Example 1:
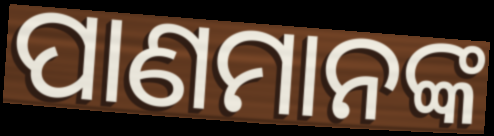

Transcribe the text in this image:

ପାଣମାନଙ୍କ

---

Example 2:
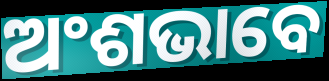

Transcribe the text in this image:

ଅଂଶଭାବେ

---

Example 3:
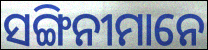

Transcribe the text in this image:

ସଙ୍ଗିନୀମାନେ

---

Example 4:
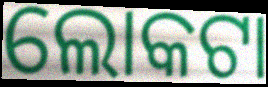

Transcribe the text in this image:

ଲୋକଟା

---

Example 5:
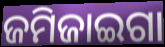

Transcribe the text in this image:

ଜମିଜାଇଗା